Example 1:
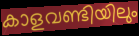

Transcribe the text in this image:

കാളവണ്ടിയിലും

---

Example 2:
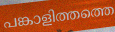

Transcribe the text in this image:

പങ്കാളിത്തത്തെ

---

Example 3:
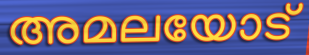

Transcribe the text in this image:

അമലയോട്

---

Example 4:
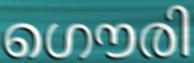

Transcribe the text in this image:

ഗൌരി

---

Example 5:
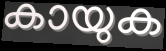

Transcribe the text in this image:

കായുക